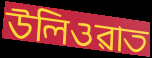
উলিওৱাত